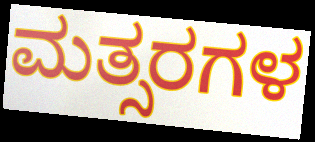
ಮತ್ಸರಗಳ